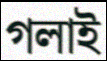
গলাই